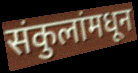
संकुलांमधून